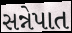
સન્નેપાત